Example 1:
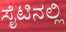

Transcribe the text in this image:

ಸೈಟಿನಲ್ಲಿ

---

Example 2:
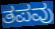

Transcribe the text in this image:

ತಪವು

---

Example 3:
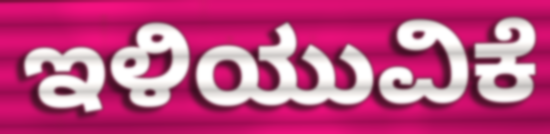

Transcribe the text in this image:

ಇಳಿಯುವಿಕೆ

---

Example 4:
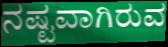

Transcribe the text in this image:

ನಷ್ಟವಾಗಿರುವ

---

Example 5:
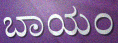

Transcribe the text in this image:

ಬಾಯಂ